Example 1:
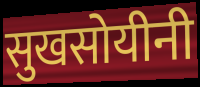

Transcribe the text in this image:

सुखसोयीनी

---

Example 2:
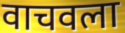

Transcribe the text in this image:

वाचवला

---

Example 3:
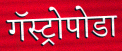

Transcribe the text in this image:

गॅस्ट्रोपोडा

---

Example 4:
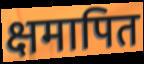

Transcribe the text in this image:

क्षमापित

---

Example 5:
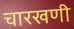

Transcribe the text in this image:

चारखणी